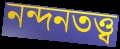
নন্দনতত্ত্ব